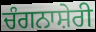
ਚੰਗਨਾਸ਼ੇਰੀ